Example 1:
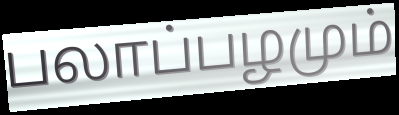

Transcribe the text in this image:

பலாப்பழமும்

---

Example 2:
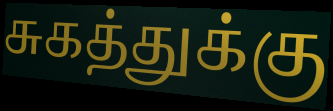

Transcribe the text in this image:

சுகத்துக்கு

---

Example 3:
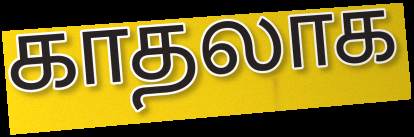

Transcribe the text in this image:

காதலாக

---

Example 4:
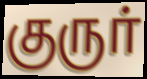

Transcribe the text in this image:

குருர்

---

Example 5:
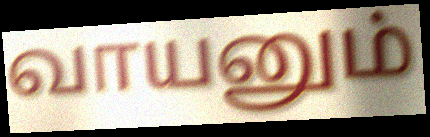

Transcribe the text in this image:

வாயனும்